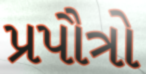
પ્રપૌત્રો